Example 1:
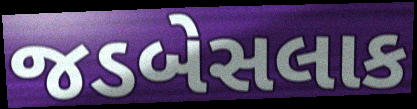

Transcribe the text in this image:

જડબેસલાક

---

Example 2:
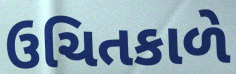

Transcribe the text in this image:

ઉચિતકાળે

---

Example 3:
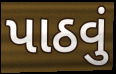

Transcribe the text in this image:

પાઠવું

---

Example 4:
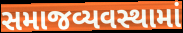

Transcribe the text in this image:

સમાજવ્યવસ્થામાં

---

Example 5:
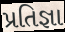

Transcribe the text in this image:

પ્રતિજ્ઞા